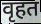
वृहत